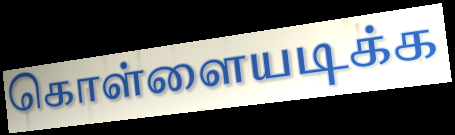
கொள்ளையடிக்க